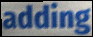
adding